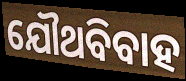
ଯୌଥବିବାହ